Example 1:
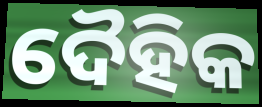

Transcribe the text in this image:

ଦୈହିକ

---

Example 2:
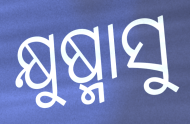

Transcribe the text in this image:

କ୍ଷୁଷ୍ମାସୁ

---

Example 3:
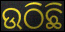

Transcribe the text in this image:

ଉଠିଛି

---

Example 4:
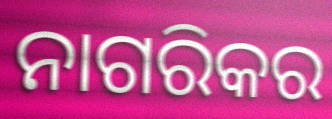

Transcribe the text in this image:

ନାଗରିକର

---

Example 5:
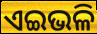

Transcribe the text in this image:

ଏଇଭଳି